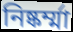
নিষ্কর্ম্মা